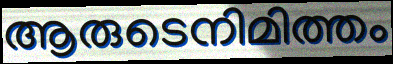
ആരുടെനിമിത്തം